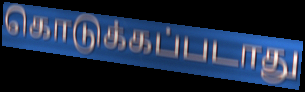
கொடுக்கப்படாது